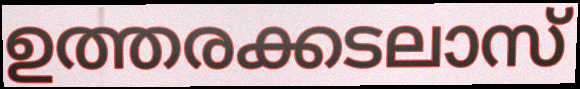
ഉത്തരക്കടലാസ്